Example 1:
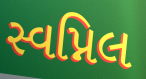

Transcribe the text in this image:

સ્વપ્નિલ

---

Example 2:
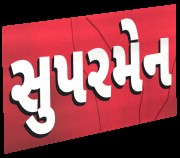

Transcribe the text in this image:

સુપરમેન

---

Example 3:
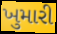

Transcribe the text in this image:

ખુમારી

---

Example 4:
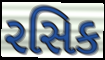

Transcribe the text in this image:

રસિક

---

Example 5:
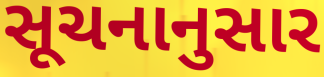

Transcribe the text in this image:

સૂચનાનુસાર